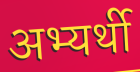
अभ्यर्थी